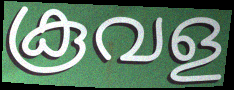
കൂവള